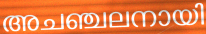
അചഞ്ചലനായി